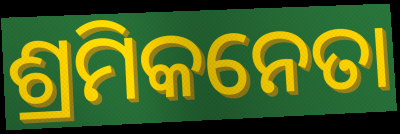
ଶ୍ରମିକନେତା